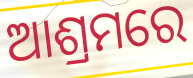
ଆଶ୍ରମରେ